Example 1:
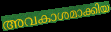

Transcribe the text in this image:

അവകാശമാക്കിയ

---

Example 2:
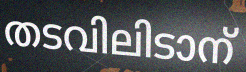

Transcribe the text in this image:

തടവിലിടാന്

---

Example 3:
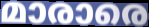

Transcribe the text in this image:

മാരാരെ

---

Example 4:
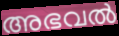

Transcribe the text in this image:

അഭവൽ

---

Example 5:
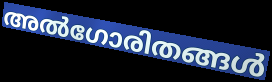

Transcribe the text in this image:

അൽഗോരിതങ്ങൾ